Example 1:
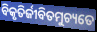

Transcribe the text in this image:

ବିକୃତିର୍ଜୀବିତମୁଚ୍ୟତେ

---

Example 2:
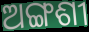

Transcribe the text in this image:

ଅଙ୍ଗଶୀ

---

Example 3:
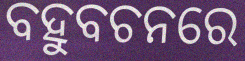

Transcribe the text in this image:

ବହୁବଚନରେ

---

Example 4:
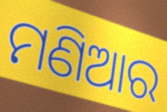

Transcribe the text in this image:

ମଣିଆର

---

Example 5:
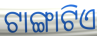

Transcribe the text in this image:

ଟାଙ୍ଗାଟିଏ